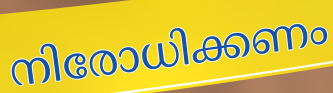
നിരോധിക്കണം